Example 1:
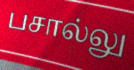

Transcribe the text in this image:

பசால்லு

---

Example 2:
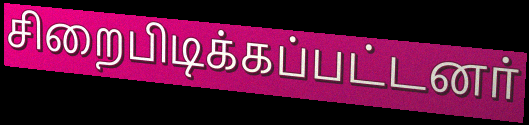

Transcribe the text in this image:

சிறைபிடிக்கப்பட்டனர்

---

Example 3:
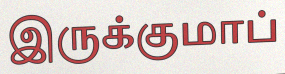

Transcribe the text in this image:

இருக்குமாப்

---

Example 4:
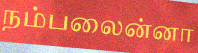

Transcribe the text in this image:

நம்பலைன்னா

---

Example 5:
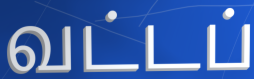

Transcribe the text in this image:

வட்டப்